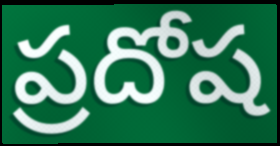
ప్రదోష